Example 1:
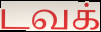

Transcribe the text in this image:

டவக்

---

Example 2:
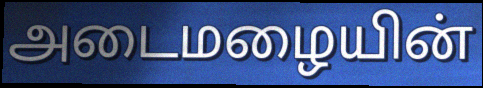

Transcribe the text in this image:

அடைமழையின்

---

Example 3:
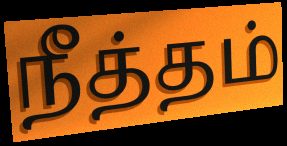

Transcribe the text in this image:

நீத்தம்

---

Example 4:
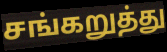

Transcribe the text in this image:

சங்கறுத்து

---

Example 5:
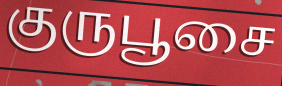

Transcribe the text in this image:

குருபூசை